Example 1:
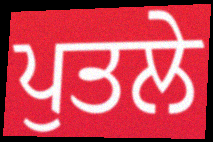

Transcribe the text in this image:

ਪੁਤਲੇ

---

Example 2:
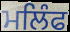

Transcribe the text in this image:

ਮਲਿੰਫ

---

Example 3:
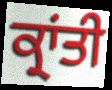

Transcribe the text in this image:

ਕ੍ਰਾਂਤੀ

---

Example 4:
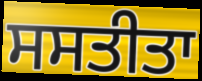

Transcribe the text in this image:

ਸਸਤੀਤਾ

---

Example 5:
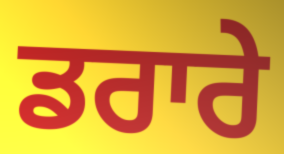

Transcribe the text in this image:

ਡਰਾਰੇ